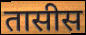
तासीस